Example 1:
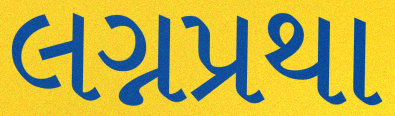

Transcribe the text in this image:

લગ્નપ્રથા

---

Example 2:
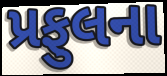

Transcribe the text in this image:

પ્રફુલના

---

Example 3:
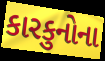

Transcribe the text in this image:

કારકુનોના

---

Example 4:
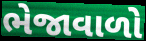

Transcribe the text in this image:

ભેજાવાળો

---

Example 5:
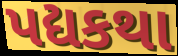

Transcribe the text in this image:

પદ્યકથા